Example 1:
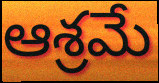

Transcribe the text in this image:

ఆశ్రమే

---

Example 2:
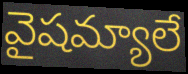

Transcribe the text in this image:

వైషమ్యాలే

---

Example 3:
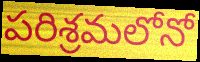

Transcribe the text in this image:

పరిశ్రమలోనో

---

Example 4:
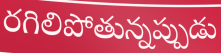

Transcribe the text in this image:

రగిలిపోతున్నప్పుడు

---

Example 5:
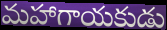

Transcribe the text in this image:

మహాగాయకుడు